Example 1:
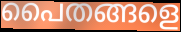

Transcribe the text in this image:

പൈതങ്ങളെ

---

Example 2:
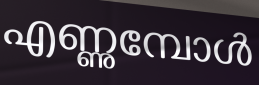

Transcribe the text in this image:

എണ്ണുമ്പോൾ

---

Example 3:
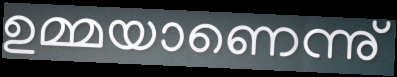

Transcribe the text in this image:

ഉമ്മയാണെന്നു്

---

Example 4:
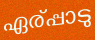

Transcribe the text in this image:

ഏര്പ്പാടു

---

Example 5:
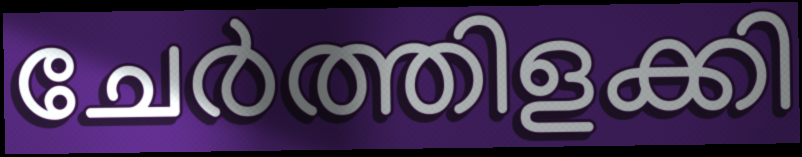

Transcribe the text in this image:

ചേർത്തിളക്കി